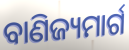
ବାଣିଜ୍ୟମାର୍ଗ